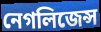
নেগলিজেন্স